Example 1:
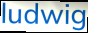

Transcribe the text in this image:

ludwig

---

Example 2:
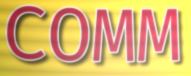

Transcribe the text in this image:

COMM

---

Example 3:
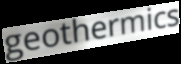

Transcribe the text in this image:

geothermics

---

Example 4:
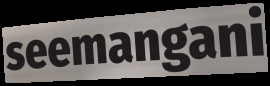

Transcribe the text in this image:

seemangani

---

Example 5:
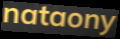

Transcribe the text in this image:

nataony